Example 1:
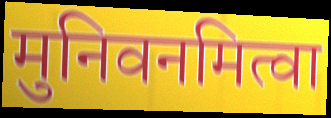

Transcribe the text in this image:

मुनिवनमित्वा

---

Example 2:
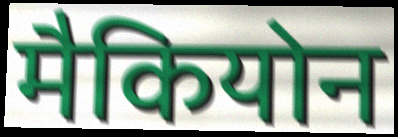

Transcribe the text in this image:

मैकियोन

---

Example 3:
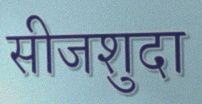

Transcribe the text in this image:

सीजशुदा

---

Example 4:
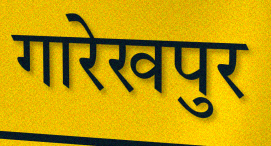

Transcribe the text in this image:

गारेखपुर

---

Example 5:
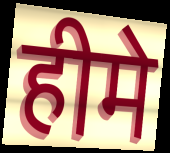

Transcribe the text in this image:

हीमे